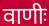
वाणीः